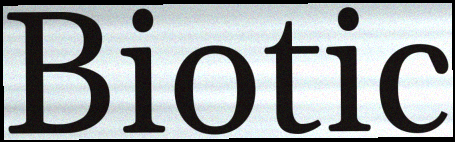
Biotic